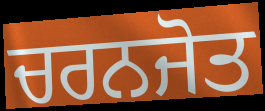
ਚਰਨਜੋਤ